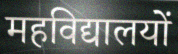
महविद्यालयों